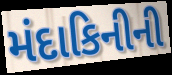
મંદાકિનીની